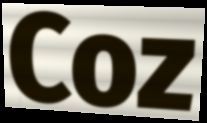
Coz